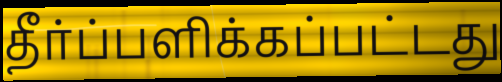
தீர்ப்பளிக்கப்பட்டது